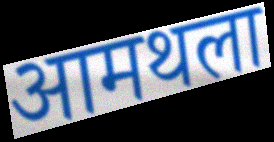
आमथला